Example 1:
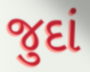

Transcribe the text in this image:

જુદાં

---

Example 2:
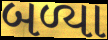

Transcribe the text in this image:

બળ્યા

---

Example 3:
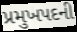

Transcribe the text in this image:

પ્રમુખપદની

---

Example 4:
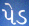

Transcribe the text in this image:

પેડ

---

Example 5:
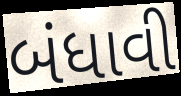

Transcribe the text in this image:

બંધાવી